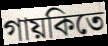
গায়কিতে